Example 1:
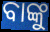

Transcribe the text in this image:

ବାଙ୍କୁ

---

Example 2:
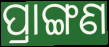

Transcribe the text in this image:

ପ୍ରାଙ୍ଗଣ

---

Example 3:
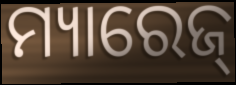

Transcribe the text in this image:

ମ୍ୟାରେଜ୍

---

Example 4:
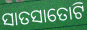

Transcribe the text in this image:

ସାତସାତୋଟି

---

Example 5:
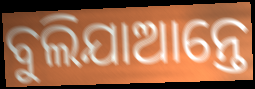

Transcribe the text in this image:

ବୁଲିଯାଆନ୍ତେ